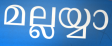
മല്ലയ്യാ